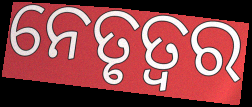
ନେତୃତ୍ୱର